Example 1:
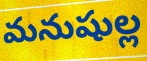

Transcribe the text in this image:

మనుషుల్ల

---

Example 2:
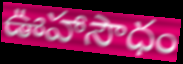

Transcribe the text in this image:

ఊహాసౌధం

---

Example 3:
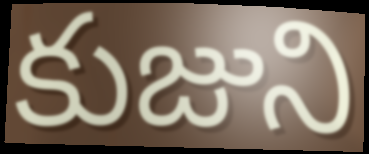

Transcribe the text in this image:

కుజుని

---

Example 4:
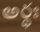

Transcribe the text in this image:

అర్థః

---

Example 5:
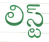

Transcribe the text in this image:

లిస్ట్